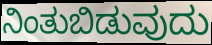
ನಿಂತುಬಿಡುವುದು